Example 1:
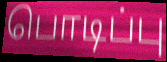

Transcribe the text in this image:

பொடிப்பு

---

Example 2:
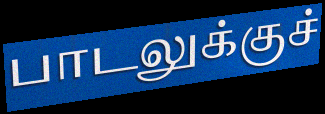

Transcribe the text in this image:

பாடலுக்குச்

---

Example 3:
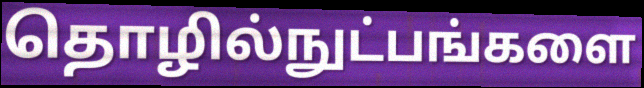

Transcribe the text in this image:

தொழில்நுட்பங்களை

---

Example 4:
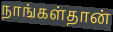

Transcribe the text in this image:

நாங்கள்தான்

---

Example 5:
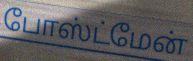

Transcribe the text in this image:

போஸ்ட்மேன்